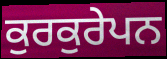
ਕੁਰਕੁਰੇਪਨ